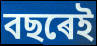
বছৰেই